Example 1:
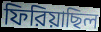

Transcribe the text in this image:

ফিরিয়াছিল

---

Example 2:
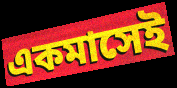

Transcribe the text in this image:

একমাসেই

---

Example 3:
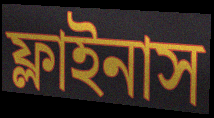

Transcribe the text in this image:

ফ্লাইনাস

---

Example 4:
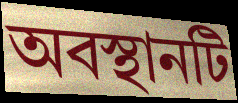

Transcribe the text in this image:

অবস্থানটি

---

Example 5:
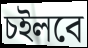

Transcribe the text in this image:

চইলবে